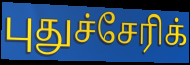
புதுச்சேரிக்